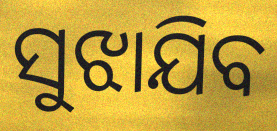
ସୁଝାଯିବ